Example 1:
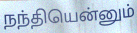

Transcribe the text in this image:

நந்தியென்னும்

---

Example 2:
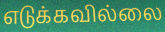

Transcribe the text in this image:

எடுக்கவில்லை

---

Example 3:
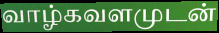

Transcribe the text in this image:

வாழ்கவளமுடன்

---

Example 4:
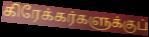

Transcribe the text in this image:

கிரேக்கர்களுக்குப்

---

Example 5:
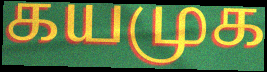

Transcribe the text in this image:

கயமுக